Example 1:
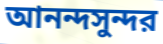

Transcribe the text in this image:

আনন্দসুন্দর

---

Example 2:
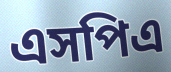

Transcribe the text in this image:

এসপিএ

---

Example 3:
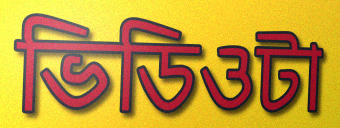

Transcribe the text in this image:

ভিডিওটা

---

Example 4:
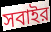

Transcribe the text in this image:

সবাইর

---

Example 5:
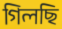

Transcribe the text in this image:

গিলছি